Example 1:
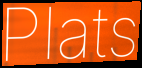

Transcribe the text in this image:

Plats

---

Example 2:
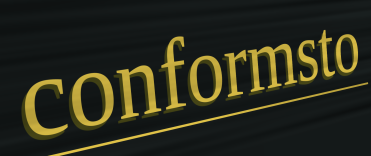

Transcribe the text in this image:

conformsto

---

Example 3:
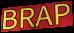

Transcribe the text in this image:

BRAP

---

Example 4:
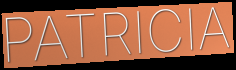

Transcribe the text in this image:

PATRICIA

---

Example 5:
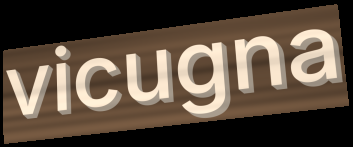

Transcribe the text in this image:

vicugna